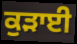
ਕੁੜਾਈ